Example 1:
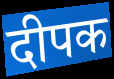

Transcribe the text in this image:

दीपक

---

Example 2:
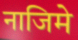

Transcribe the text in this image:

नाजिमे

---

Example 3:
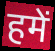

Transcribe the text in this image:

हमें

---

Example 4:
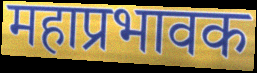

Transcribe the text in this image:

महाप्रभावक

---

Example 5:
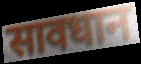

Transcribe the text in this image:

सावधान